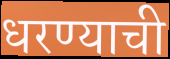
धरण्याची